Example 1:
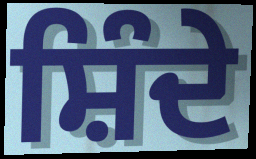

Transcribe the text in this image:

ਸ਼ਿੰਦੇ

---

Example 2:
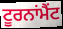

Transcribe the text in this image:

ਟੂਰਨਾਂਮੈਂਟ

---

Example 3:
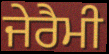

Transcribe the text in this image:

ਜੇਰੈਮੀ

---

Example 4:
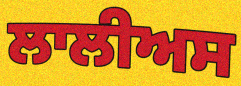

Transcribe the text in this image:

ਲਾਲੀਅਸ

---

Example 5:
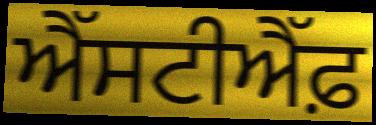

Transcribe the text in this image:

ਐੱਸਟੀਐੱਫ਼